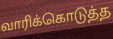
வாரிக்கொடுத்த